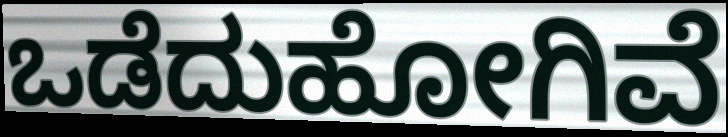
ಒಡೆದುಹೋಗಿವೆ